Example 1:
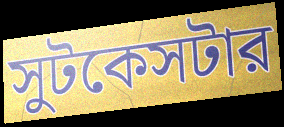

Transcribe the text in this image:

সুটকেসটার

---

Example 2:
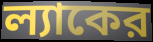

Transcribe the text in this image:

ল্যাকের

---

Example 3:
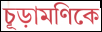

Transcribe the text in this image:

চূড়ামণিকে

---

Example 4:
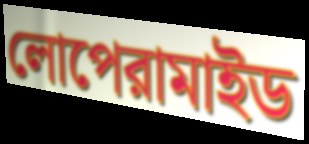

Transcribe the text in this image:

লোপেরামাইড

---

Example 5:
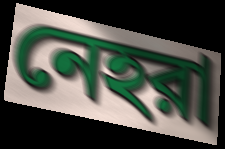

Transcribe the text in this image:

নেহরা